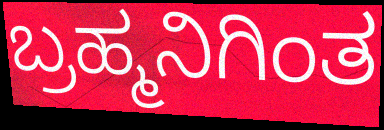
ಬ್ರಹ್ಮನಿಗಿಂತ